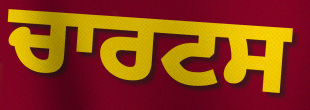
ਚਾਰਟਸ